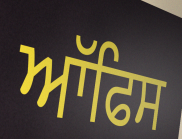
ਆੱਫਿਸ